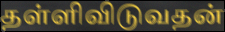
தள்ளிவிடுவதன்